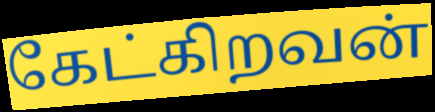
கேட்கிறவன்